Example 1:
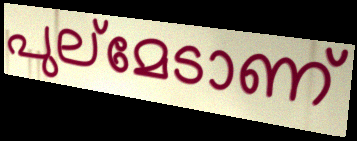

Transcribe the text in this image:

പുല്മേടാണ്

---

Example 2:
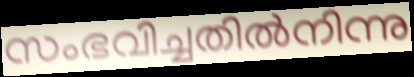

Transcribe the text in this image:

സംഭവിച്ചതിൽനിന്നു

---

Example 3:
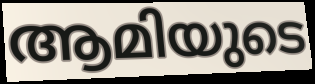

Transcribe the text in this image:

ആമിയുടെ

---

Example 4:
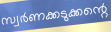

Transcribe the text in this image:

സ്വർണക്കടുക്കന്റെ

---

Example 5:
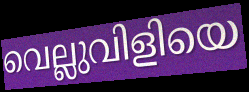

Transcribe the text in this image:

വെല്ലുവിളിയെ